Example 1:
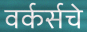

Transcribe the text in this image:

वर्कर्सचे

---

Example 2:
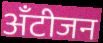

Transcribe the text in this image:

अँटीजन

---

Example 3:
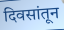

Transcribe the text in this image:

दिवसांतून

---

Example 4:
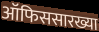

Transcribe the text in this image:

ऑफिससारख्या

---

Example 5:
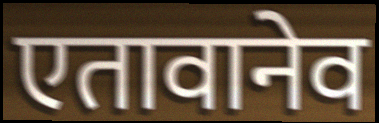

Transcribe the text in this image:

एतावानेव